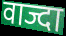
वाज्दा